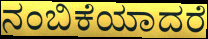
ನಂಬಿಕೆಯಾದರೆ